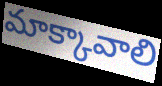
మాక్కావాలి